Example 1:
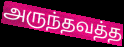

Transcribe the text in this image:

அருந்தவத்த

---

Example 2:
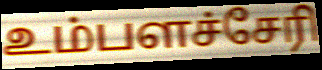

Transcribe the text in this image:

உம்பளச்சேரி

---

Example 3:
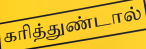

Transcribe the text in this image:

கரித்துண்டால்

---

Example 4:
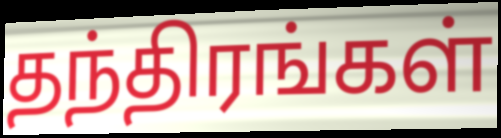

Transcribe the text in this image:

தந்திரங்கள்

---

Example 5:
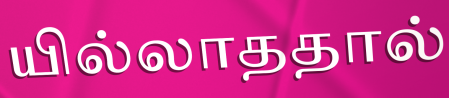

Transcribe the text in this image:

யில்லாததால்